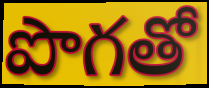
పొగతో